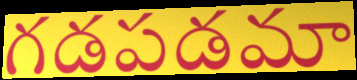
గడపడమా